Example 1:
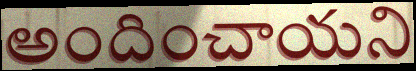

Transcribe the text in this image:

అందించాయని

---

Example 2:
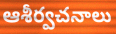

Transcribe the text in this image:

ఆశీర్వచనాలు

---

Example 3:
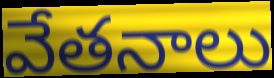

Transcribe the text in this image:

వేతనాలు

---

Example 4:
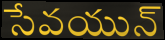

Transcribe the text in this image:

సేవయున్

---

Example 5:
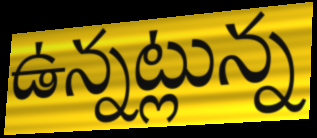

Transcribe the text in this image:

ఉన్నట్లున్న